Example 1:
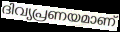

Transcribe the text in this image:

ദിവ്യപ്രണയമാണ്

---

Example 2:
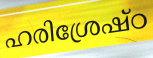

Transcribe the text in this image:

ഹരിശ്രേഷ്ഠ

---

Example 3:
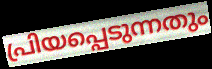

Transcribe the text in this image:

പ്രിയപ്പെടുന്നതും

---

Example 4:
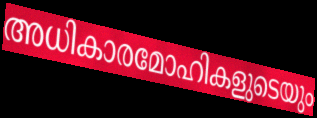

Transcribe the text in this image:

അധികാരമോഹികളുടെയും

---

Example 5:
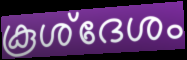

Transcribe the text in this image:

കൂശ്ദേശം